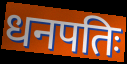
धनपतिः